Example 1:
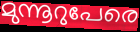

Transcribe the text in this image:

മുന്നൂറുപേരെ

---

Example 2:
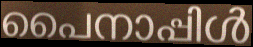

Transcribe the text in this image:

പൈനാപ്പിൾ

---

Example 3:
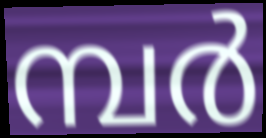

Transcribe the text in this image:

മ്പർ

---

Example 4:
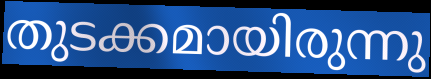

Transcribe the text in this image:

തുടക്കമായിരുന്നു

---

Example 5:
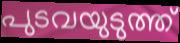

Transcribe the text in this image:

പുടവയുടുത്ത്